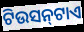
ଟିଉସନ୍‍ଟାଏ